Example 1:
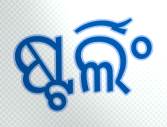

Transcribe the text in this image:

ଷ୍ଟର୍ଲିଂ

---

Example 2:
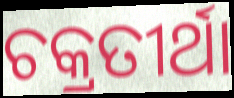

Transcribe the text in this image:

ଚକ୍ରତୀର୍ଥା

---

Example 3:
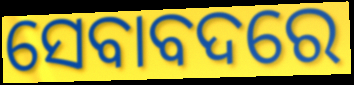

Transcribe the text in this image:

ସେବାବଦରେ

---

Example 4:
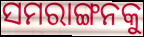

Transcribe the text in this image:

ସମରାଙ୍ଗନକୁ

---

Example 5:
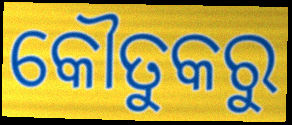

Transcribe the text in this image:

କୌତୁକରୁ